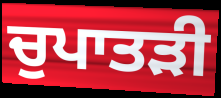
ਚੁਪਾਤੜੀ